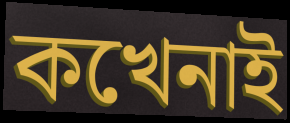
কখেনাই